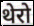
थेरो